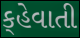
ક્‌હેવાતી